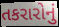
તકરારોનું